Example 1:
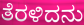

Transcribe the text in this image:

ತೆರಳಿದನು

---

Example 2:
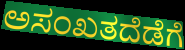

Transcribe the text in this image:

ಅಸಂಖತದೆಡೆಗೆ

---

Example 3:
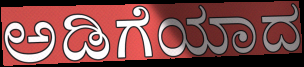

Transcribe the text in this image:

ಅಡಿಗೆಯಾದ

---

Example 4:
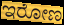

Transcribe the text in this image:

ಇರೋಣ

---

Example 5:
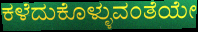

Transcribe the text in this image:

ಕಳೆದುಕೊಳ್ಳುವಂತೆಯೇ